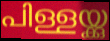
പിള്ളയ്ക്കു